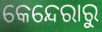
କେନ୍ଦେରାରୁ